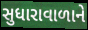
સુધારાવાળાને